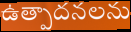
ఉత్పాదనలను